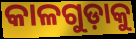
କାଳଗୁଡ଼ାକୁ